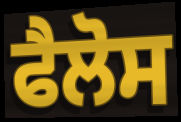
ਫੈਲੋਸ